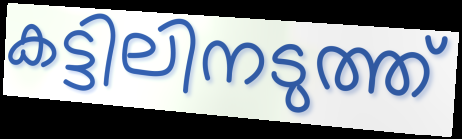
കട്ടിലിനടുത്ത്